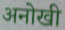
अनोखी